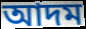
আদম